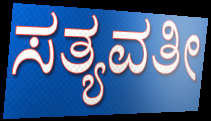
ಸತ್ಯವತೀ